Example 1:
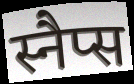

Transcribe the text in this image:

स्नैप्स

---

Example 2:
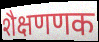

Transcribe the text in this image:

शैक्षणणक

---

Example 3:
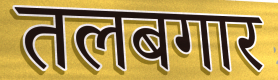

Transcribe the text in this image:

तलबगार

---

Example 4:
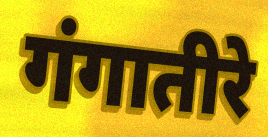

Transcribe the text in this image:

गंगातीरे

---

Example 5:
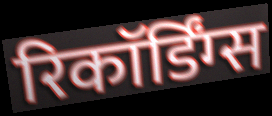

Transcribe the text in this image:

रिकॉर्डिंग्स